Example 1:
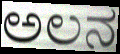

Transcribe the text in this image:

ಅಲನ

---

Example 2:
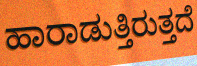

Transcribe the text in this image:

ಹಾರಾಡುತ್ತಿರುತ್ತದೆ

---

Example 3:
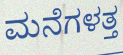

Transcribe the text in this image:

ಮನೆಗಳತ್ತ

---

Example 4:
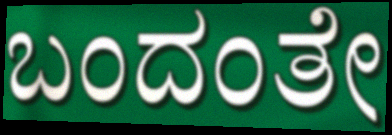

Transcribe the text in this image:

ಬಂದಂತೇ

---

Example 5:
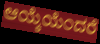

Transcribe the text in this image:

ಆಯ್ಕೆಯೆಂದರೆ